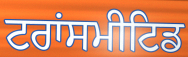
ਟਰਾਂਸਮੀਟਿਡ